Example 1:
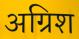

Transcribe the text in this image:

अग्रिश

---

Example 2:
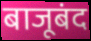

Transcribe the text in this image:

बाजूबंद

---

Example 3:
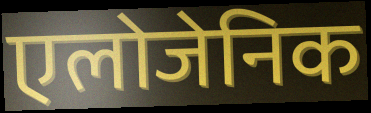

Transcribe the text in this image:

एलोजेनिक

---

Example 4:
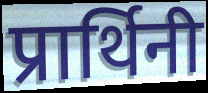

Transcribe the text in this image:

प्रार्थिनी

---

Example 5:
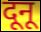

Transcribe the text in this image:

दूनू